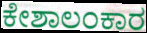
ಕೇಶಾಲಂಕಾರ